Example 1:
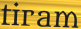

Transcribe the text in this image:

tiram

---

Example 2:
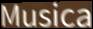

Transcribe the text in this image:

Musica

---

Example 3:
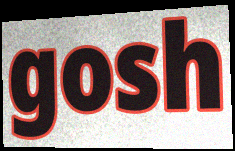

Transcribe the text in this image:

gosh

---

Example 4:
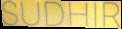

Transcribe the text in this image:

SUDHIR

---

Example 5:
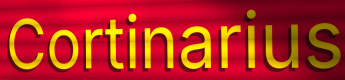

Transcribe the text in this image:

Cortinarius